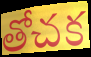
తోచక